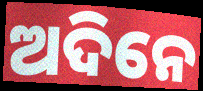
ଅଦିନେ